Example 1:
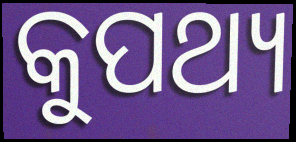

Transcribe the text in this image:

କୁପଥ୍ୟ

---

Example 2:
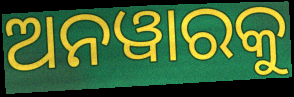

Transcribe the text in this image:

ଅନୱାରକୁ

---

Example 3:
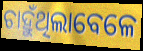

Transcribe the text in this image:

ଚାହୁଁଥିଲାବେଳେ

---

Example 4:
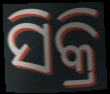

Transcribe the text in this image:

ସିକ୍ରି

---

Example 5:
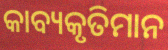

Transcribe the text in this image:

କାବ୍ୟକୃତିମାନ